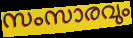
സംസാരവും